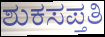
ಶುಕಸಪ್ತತಿ